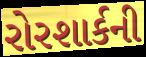
રોરશાર્કની